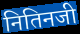
नितिनजी